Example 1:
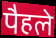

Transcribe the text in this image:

पैहले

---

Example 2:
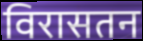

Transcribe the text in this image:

विरासतन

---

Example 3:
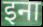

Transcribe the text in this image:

इना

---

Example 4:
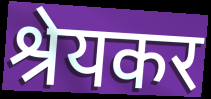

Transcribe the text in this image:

श्रेयकर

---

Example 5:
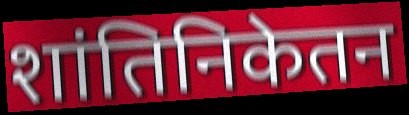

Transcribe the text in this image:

शांतिनिकेतन